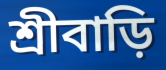
শ্রীবাড়ি